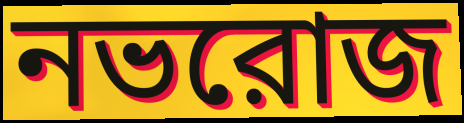
নভরোজ